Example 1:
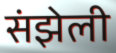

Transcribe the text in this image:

संझेली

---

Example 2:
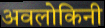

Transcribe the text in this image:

अवलोकिनी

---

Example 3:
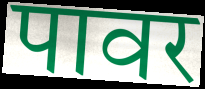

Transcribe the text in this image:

पावर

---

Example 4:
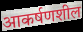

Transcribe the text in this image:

आकर्षणशील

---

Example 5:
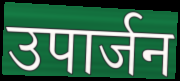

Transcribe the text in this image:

उपार्जन